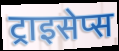
ट्राइसेप्स